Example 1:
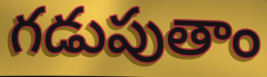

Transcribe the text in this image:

గడుపుతాం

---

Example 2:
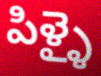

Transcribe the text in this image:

పిళ్ళై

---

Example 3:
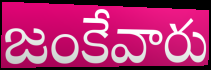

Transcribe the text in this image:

జంకేవారు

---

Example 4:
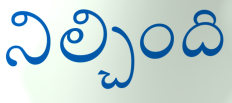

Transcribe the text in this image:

నిల్చింది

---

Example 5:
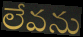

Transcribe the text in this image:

లేవను